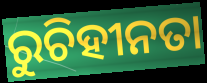
ରୁଚିହୀନତା